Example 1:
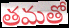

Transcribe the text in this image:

తమతో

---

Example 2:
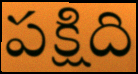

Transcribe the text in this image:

పక్షిది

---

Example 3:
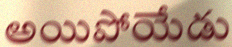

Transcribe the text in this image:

అయిపోయేడు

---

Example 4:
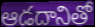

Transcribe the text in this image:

ఆడదానితో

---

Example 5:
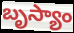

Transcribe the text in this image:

బృస్యాం